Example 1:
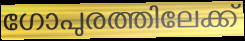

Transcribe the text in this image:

ഗോപുരത്തിലേക്ക്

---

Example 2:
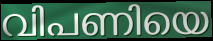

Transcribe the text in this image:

വിപണിയെ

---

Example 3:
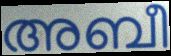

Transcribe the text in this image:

അബീ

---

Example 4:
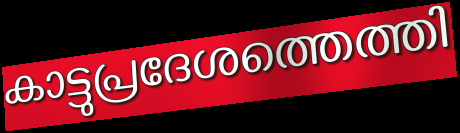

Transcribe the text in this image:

കാട്ടുപ്രദേശത്തെത്തി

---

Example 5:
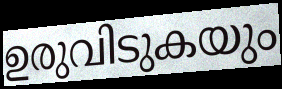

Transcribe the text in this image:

ഉരുവിടുകയും